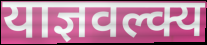
याज्ञवल्क्य